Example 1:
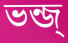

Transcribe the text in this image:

ভন্জ্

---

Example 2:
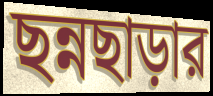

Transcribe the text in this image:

ছন্নছাড়ার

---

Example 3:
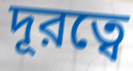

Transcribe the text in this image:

দূরত্বে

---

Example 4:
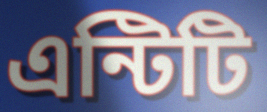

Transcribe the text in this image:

এন্টিটি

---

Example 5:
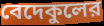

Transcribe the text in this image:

বেদেকুলের